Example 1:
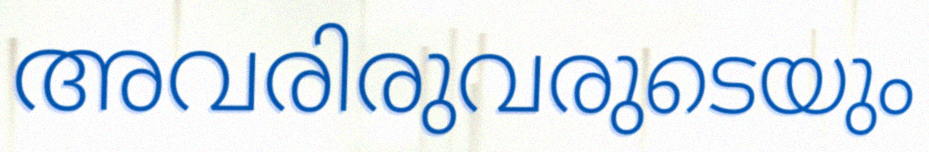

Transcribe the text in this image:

അവരിരുവരുടെയും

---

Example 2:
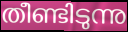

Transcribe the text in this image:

തീണ്ടിടുന്നു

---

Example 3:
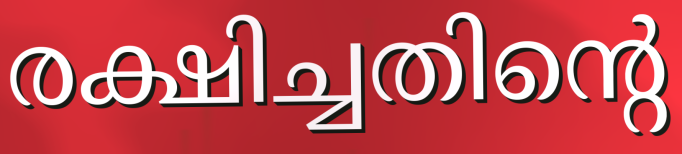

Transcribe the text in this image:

രക്ഷിച്ചതിന്റെ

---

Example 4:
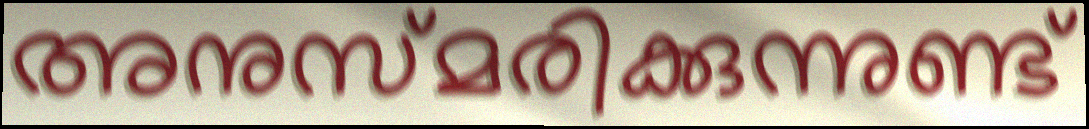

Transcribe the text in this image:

അനുസ്മരിക്കുന്നുണ്ട്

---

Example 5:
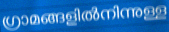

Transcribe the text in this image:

ഗ്രാമങ്ങളിൽനിന്നുള്ള